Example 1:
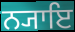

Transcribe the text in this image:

ਨ੍ਯਾਇ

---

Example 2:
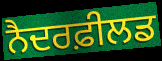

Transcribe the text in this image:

ਨੈਦਰਫ਼ੀਲਡ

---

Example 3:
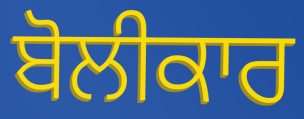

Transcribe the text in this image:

ਬੋਲੀਕਾਰ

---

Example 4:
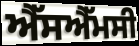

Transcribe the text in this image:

ਐੱਸਐੱਮਸੀ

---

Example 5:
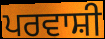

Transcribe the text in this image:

ਪਰਵਾਸ਼ੀ